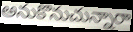
అనుకొనుచున్నారా